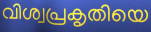
വിശ്വപ്രകൃതിയെ